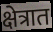
क्षेत्रात